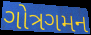
ગોત્રગમન